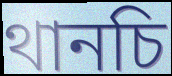
থানচি